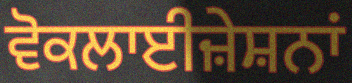
ਵੋਕਲਾਈਜ਼ੇਸ਼ਨਾਂ